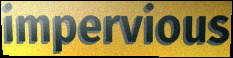
impervious